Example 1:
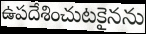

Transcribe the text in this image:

ఉపదేశించుటకైనను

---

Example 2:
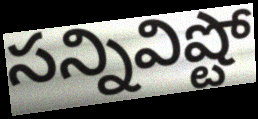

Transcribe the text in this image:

సన్నివిష్టో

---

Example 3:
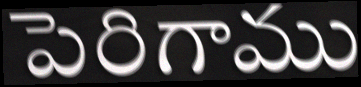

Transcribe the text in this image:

పెరిగాము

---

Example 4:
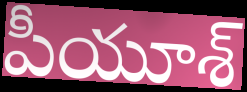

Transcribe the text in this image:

పీయూశ్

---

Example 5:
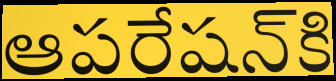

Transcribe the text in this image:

ఆపరేషన్‌కి